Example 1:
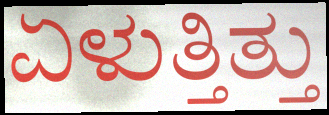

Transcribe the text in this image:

ಏಳುತ್ತಿತ್ತು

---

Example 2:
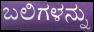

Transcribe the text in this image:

ಬಲಿಗಳನ್ನು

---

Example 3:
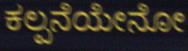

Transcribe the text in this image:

ಕಲ್ಪನೆಯೇನೋ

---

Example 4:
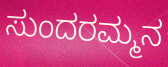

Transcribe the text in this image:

ಸುಂದರಮ್ಮನ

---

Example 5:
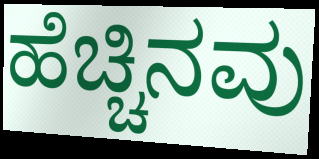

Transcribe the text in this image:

ಹೆಚ್ಚಿನವು